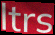
ltrs